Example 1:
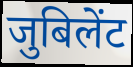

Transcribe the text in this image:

जुबिलेंट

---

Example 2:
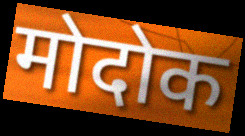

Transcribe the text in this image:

मोदोक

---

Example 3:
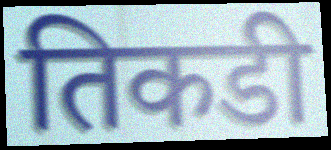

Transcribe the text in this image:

तिकडी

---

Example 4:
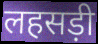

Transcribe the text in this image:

लहसड़ी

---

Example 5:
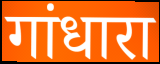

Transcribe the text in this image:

गांधारा